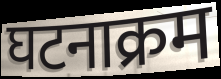
घटनाक्रम